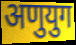
अणुयुग